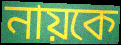
নায়কে